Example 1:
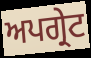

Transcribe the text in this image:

ਅਪਗ੍ਰੇਟ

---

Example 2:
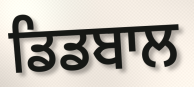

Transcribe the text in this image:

ਡਿਡਬਾਲ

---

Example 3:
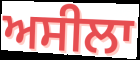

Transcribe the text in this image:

ਅਸੀਲਾ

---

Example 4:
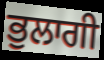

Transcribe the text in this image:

ਭੁਲਾਗੀ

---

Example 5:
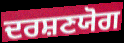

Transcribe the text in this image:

ਦਰਸ਼ਣਯੋਗ